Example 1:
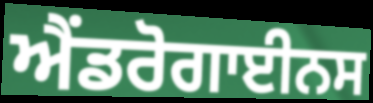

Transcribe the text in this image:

ਐਂਡਰੋਗਾਈਨਸ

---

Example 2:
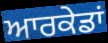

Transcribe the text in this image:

ਆਰਕੇਡਾਂ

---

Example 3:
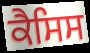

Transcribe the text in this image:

ਕੈਸਿਸ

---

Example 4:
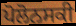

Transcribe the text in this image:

ਪੋਲੋਨਸਕੀ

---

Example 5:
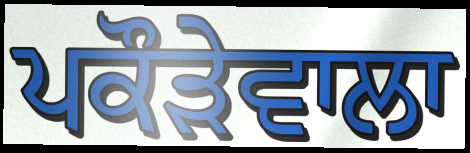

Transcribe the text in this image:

ਪਕੌੜੇਵਾਲਾ